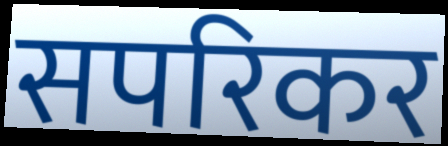
सपरिकर